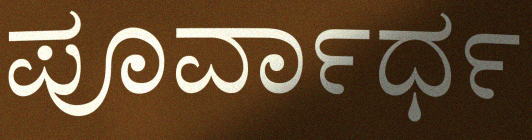
ಪೂರ್ವಾರ್ಧ